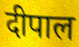
दीपाल